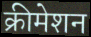
क्रीमेशन